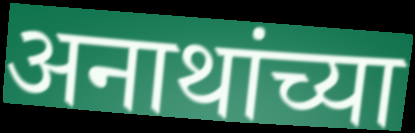
अनाथांच्या